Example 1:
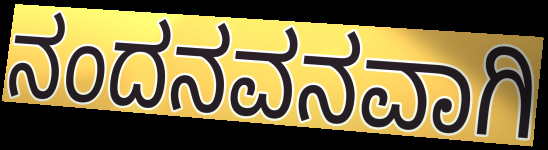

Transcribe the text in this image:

ನಂದನವನವಾಗಿ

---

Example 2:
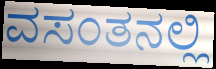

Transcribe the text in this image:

ವಸಂತನಲ್ಲಿ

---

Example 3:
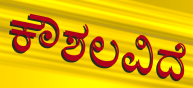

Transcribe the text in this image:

ಕೌಶಲವಿದೆ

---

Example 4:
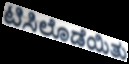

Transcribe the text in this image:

ಟಿಸಿಲೊಡೆಯಿತು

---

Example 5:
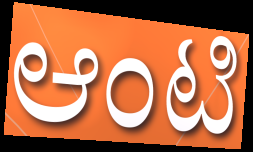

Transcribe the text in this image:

ಆಂಟಿ